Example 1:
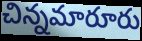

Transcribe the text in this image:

చిన్నమారూరు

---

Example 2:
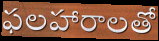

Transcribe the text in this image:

ఫలహారాలతో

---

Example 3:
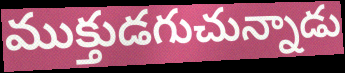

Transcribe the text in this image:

ముక్తుడగుచున్నాడు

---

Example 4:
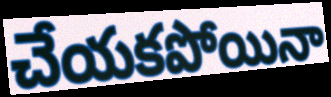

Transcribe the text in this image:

చేయకపోయినా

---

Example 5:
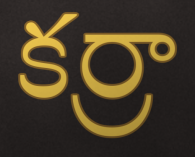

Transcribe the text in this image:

కర్రా